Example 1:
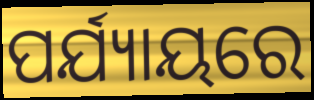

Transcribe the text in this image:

ପର୍ଯ୍ଯାୟରେ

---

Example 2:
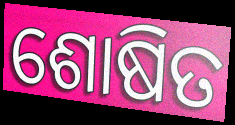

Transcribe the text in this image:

ଶୋଷିତ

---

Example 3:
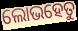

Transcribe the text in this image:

ଲୋଭହେତୁ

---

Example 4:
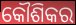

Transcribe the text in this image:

କୌଶିକର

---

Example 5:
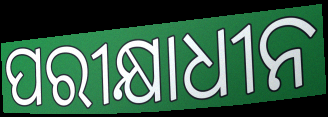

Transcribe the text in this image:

ପରୀକ୍ଷାଧୀନ